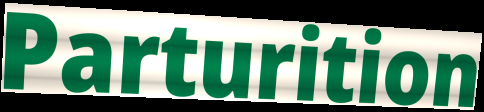
Parturition